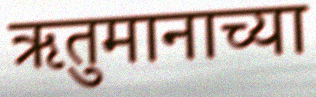
ऋतुमानाच्या